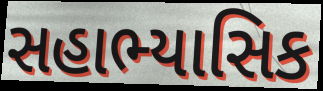
સહાભ્યાસિક